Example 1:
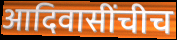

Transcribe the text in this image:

आदिवासींचीच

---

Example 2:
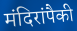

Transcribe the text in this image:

मंदिरांपैकी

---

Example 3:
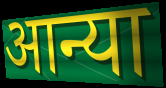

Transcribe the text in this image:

आन्या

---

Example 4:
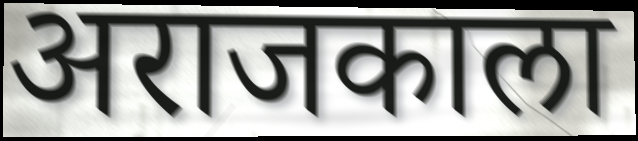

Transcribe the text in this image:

अराजकाला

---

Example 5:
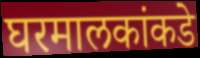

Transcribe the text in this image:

घरमालकांकडे